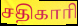
சதிகாரி